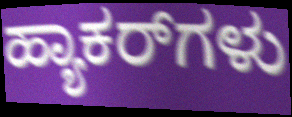
ಹ್ಯಾಕರ್‌ಗಳು